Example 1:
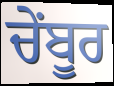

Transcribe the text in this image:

ਚੇਂਬੂਰ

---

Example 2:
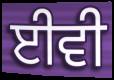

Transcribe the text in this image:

ਈਵੀ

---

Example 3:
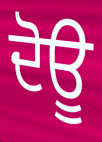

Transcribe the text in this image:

ਦੋਊ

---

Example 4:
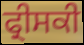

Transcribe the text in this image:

ਫ੍ਰੀਸਕੀ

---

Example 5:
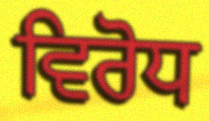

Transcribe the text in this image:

ਵਿਰੋਧ